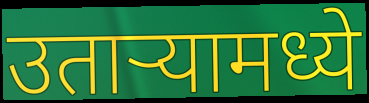
उताऱ्यामध्ये